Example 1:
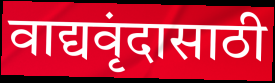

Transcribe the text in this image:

वाद्यवृंदासाठी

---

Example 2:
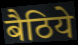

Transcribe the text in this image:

बैठिये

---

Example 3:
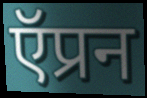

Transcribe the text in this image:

ऍप्रन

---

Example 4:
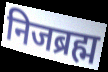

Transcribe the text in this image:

निजब्रह्म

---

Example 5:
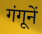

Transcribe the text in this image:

गंगूनें